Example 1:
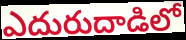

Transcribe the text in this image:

ఎదురుదాడిలో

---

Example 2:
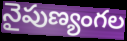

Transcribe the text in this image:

నైపుణ్యంగల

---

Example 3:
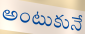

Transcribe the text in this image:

అంటుకునే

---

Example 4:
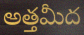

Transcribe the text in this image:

అత్తమీద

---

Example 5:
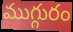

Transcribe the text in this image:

ముగ్గురం